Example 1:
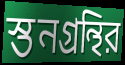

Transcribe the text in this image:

স্তনগ্রন্থির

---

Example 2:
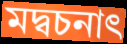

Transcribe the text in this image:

মদ্বচনাৎ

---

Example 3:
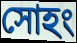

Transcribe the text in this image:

সোহং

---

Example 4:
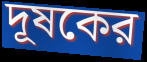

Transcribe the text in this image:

দূষকের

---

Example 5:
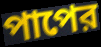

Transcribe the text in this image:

পাপের